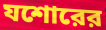
যশোরের